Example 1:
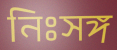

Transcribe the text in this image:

নিঃসঙ্গ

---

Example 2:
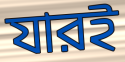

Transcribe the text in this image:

যারই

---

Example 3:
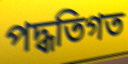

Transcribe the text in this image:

পদ্ধতিগত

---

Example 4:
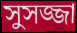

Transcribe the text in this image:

সুসজ্জা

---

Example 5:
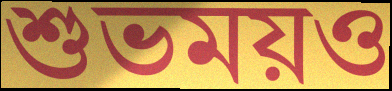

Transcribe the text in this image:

শুভময়ও